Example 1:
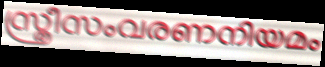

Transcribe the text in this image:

സ്ത്രീസംവരണനിയമം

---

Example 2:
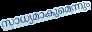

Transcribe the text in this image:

സാധ്യമാകുമെന്നും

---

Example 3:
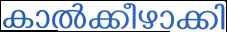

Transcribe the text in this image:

കാൽക്കീഴാക്കി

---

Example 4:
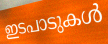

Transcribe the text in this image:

ഇടപാടുകൾ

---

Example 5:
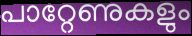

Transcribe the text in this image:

പാറ്റേണുകളും